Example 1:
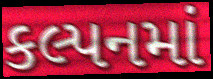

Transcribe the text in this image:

કલ્પનમાં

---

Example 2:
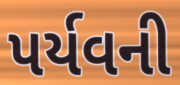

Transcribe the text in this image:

પર્યવની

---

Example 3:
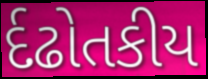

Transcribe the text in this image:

ર્દઢોતકીય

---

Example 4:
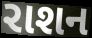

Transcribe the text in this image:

રાશન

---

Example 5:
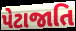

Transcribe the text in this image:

પેટાજાતિ